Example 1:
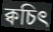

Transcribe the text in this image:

ক্বচিৎ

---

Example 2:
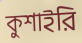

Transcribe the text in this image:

কুশাইরি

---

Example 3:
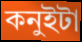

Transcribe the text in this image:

কনুইটা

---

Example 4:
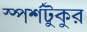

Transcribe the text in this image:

স্পর্শটুকুর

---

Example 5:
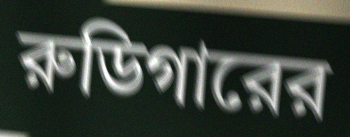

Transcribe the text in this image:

রুডিগারের